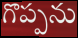
గొప్పను